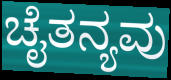
ಚೈತನ್ಯವು